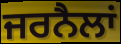
ਜਰਨੈਲਾਂ